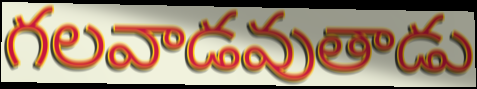
గలవాడవుతాడు